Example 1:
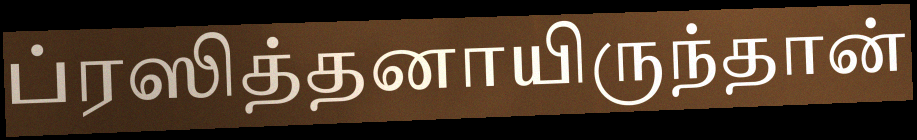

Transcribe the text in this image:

ப்ரஸித்தனாயிருந்தான்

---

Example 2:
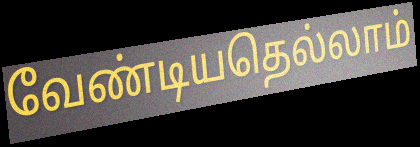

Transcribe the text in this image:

வேண்டியதெல்லாம்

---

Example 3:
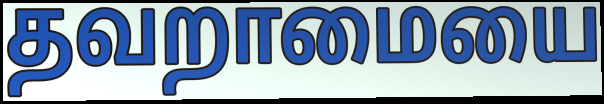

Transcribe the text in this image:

தவறாமையை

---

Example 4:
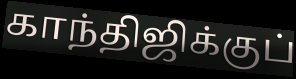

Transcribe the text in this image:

காந்திஜிக்குப்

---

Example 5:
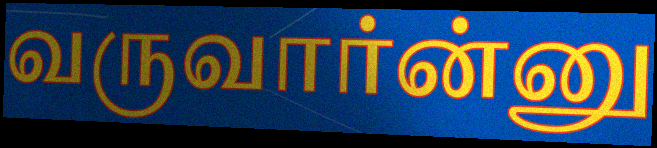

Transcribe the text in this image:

வருவார்ன்னு